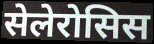
सेलेरोसिस